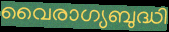
വൈരാഗ്യബുദ്ധി